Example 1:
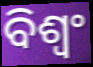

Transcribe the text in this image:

ବିଶ୍ୱଂ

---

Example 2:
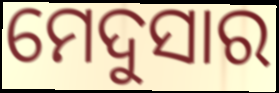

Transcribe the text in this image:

ମେଦୁସାର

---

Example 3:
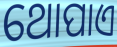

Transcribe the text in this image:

ଥୋପାଏ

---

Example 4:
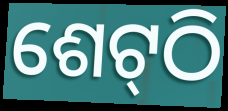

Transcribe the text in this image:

ଶେଟ୍‍ଠି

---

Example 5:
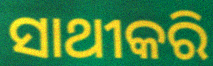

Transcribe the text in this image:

ସାଥୀକରି